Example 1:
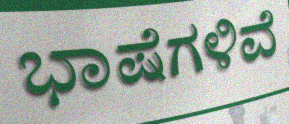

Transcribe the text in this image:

ಭಾಷೆಗಳಿವೆ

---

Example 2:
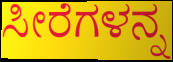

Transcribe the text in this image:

ಸೀರೆಗಳನ್ನ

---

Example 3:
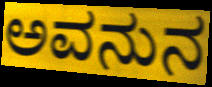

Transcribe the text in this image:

ಅವನುನ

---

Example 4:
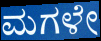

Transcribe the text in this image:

ಮಗಳೇ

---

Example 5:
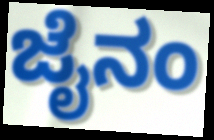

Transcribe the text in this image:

ಜೈನಂ